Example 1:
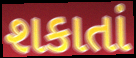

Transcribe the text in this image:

શકાતાં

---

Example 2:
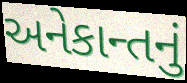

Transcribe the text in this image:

અનેકાન્તનું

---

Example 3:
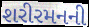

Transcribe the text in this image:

શરીરમનની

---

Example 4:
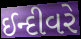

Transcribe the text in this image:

ઈન્દીવરે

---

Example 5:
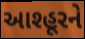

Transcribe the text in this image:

આશ્હૂરને